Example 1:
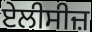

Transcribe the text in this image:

ਏਲੀਸੀਜ਼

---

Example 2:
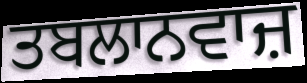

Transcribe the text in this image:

ਤਬਲਾਨਵਾਜ਼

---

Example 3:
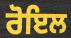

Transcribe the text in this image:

ਰੋਇਲ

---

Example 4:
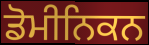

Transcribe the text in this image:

ਡੋਮੀਨਿਕਨ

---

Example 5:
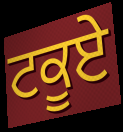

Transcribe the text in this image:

ਟਕੂਏ